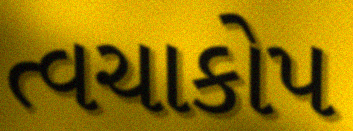
ત્વચાકોપ